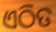
ଏଠିତ